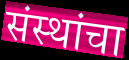
संस्थांचा